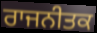
ਰਾਜਨੀਤਕ